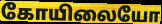
கோயிலையோ